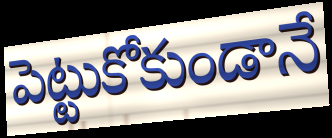
పెట్టుకోకుండానే